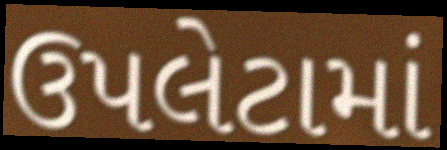
ઉપલેટામાં